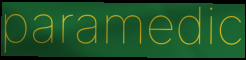
paramedic